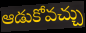
ఆడుకోవచ్చు